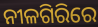
ନୀଳଗିରିରେ